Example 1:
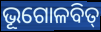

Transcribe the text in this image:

ଭୂଗୋଳବିତ୍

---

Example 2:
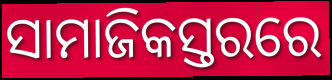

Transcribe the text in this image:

ସାମାଜିକସ୍ତରରେ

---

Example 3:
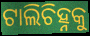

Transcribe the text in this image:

ଟାଲିଚିହ୍ନକୁ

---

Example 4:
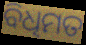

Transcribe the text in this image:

ବିଧିମତ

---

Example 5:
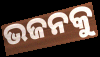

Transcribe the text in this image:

ଭଜନକୁ